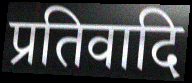
प्रतिवादि